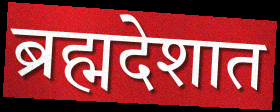
ब्रह्मदेशात